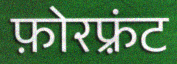
फ़ोरफ़्रंट